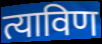
त्याविण